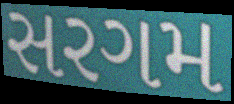
સરગમ